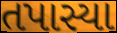
તપાસ્યા